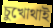
চুখোথাই